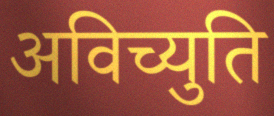
अविच्युति